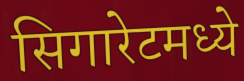
सिगारेटमध्ये